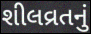
શીલવ્રતનું